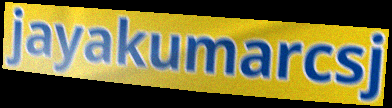
jayakumarcsj